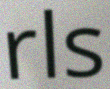
rls